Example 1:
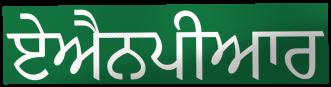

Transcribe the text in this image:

ਏਐਨਪੀਆਰ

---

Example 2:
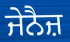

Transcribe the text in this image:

ਜੇਨੈਜ਼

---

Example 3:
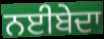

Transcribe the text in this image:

ਨਈਬੇਦਾ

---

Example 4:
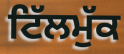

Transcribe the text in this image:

ਟਿੱਲਮੁੱਕ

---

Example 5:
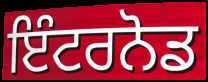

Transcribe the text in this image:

ਇੰਟਰਨੋਡ